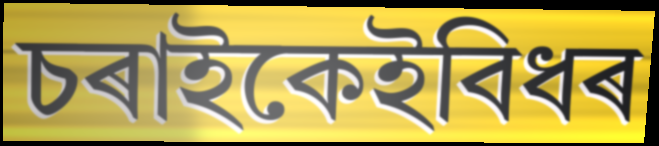
চৰাইকেইবিধৰ